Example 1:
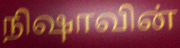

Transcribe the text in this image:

நிஷாவின்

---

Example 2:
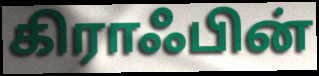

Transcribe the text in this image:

கிராஃபின்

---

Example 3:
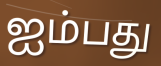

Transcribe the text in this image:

ஐம்பது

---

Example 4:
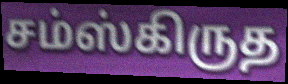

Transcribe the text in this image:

சம்ஸ்கிருத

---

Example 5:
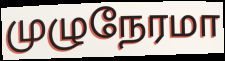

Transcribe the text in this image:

முழுநேரமா